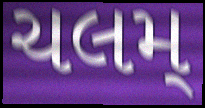
ચલમ્